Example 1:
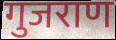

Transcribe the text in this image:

गुजराण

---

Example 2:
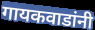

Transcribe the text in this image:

गायकवाडांनी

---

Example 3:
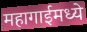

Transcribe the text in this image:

महागाईमध्ये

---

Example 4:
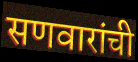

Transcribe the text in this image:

सणवारांची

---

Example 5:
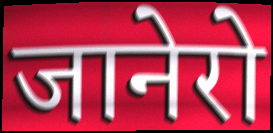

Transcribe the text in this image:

जानेरो